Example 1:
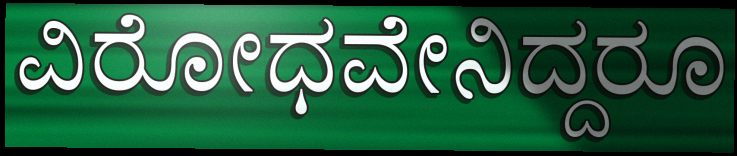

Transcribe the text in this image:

ವಿರೋಧವೇನಿದ್ದರೂ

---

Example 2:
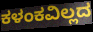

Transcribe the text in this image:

ಕಳಂಕವಿಲ್ಲದ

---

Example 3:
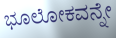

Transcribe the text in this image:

ಭೂಲೋಕವನ್ನೇ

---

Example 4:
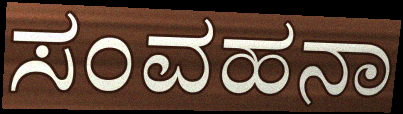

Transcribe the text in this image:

ಸಂವಹನಾ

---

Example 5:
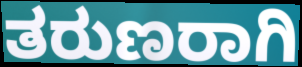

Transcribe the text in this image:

ತರುಣರಾಗಿ